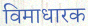
विमाधारक